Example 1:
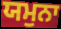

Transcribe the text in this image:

ਯਮੁਨਾ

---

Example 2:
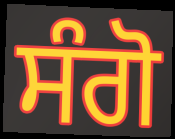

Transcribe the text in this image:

ਸੰਗੋ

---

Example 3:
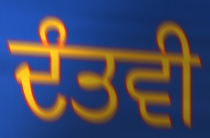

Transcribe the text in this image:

ਦੰਤਵੀ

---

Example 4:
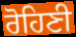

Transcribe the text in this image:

ਰੋਹਿਣੀ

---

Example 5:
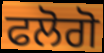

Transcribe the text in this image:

ਫਲੋਗੋ